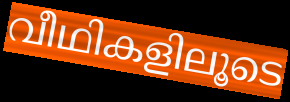
വീഥികളിലൂടെ